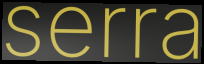
serra